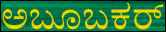
ಅಬೂಬಕರ್